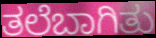
ತಲೆಬಾಗಿತು